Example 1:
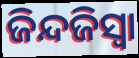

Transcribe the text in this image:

ଜିନ୍ଦଜିସ୍ୱା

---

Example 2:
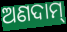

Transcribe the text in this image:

ଅଣଦାମ୍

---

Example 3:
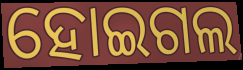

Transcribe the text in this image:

ହୋଇଗଲ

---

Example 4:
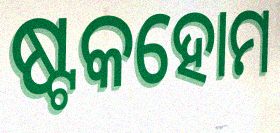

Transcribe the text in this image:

ଷ୍ଟକହୋମ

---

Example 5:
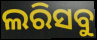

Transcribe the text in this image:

ଲରିସବୁ